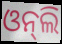
ଓନ୍‍ଲି